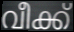
വീക്ക്